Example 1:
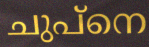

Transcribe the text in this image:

ചുപ്നെ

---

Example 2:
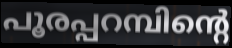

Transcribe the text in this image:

പൂരപ്പറമ്പിന്റെ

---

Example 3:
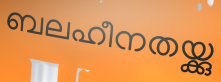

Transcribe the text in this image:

ബലഹീനതയ്ക്കു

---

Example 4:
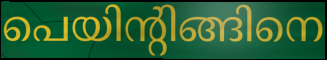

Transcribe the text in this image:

പെയിന്റിങ്ങിനെ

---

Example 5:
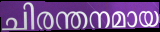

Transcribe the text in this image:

ചിരന്തനമായ